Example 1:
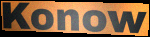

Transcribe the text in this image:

Konow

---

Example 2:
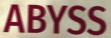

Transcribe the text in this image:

ABYSS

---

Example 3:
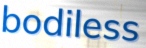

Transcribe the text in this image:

bodiless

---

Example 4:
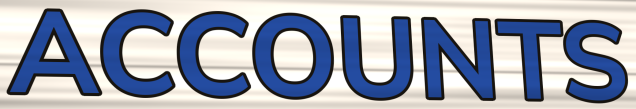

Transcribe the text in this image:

ACCOUNTS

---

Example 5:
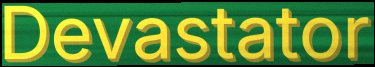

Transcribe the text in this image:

Devastator